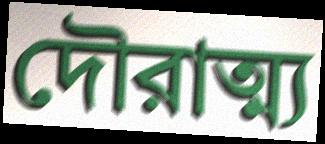
দৌরাত্ম্য